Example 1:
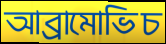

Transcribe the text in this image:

আব্রামোভিচ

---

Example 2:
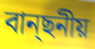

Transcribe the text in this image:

বান্ছনীয়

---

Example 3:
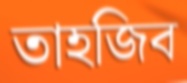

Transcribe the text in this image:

তাহজিব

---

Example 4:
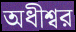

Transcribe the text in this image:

অধীশ্বর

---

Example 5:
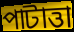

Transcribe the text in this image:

পাটাত্তা